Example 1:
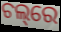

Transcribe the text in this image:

ଚଲ୍‌ରେ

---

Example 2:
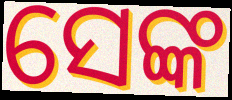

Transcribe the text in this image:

ସେଙ୍କ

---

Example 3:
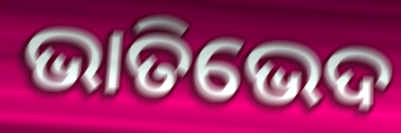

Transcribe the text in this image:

ଭାତିଭେଦ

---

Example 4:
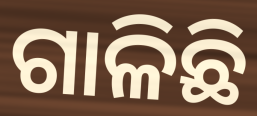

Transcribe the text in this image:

ଗାଳିଛି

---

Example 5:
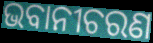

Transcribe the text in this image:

ଭବାନୀଚରଣ